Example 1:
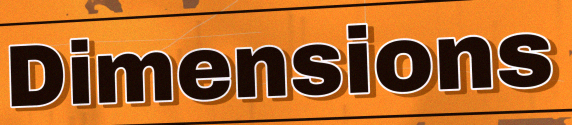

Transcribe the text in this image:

Dimensions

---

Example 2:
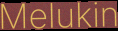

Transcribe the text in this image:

Melukin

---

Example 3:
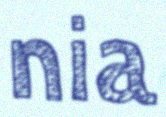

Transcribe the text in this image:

nia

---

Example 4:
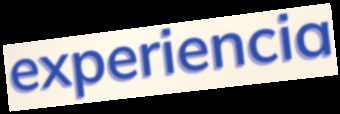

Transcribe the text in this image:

experiencia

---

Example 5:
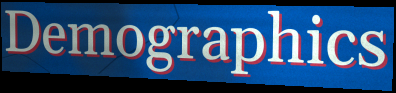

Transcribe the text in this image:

Demographics